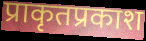
प्राकृतप्रकाश